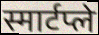
स्मार्टप्ले